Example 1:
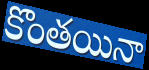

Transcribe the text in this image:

కొంతయినా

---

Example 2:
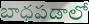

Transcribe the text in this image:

బాధపడాలో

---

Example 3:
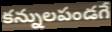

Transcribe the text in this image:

కన్నులపండగే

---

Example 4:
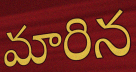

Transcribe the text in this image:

మారిన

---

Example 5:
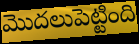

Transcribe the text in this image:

మొదలుపెట్టింది